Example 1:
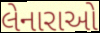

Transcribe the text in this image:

લેનારાઓ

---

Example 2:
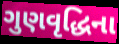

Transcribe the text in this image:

ગુણવૃદ્ધિના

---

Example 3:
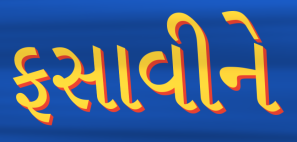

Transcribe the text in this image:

ફસાવીને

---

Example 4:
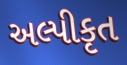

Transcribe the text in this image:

અલ્પીકૃત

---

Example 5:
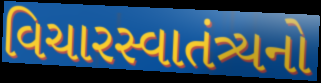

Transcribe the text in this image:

વિચારસ્વાતંત્ર્યનો